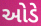
ઓડે